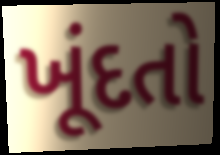
ખૂંદતો